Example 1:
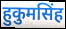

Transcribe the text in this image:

हुकुमसिंह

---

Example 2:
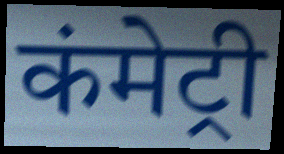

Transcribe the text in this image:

कंमेट्री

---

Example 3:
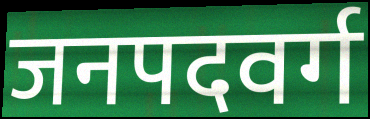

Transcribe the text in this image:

जनपदवर्ग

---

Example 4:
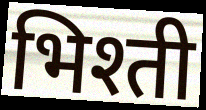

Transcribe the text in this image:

भिश्ती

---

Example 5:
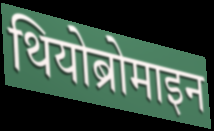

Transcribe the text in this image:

थियोब्रोमाइन